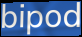
bipod